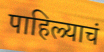
पाहिल्याचं